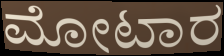
ಮೋಟಾರ